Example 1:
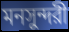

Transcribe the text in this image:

মনসুন্দরী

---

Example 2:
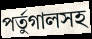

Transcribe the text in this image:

পর্তুগালসহ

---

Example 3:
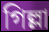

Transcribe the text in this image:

গিল্লা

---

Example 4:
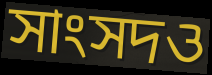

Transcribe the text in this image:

সাংসদও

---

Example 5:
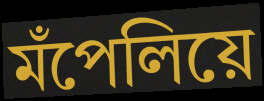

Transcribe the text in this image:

মঁপেলিয়ে